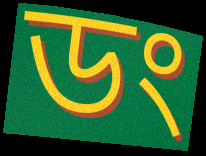
ডং